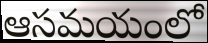
ఆసమయంలో